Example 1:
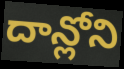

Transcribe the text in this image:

దాన్లోని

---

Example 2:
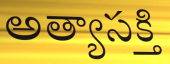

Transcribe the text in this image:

అత్యాసక్తి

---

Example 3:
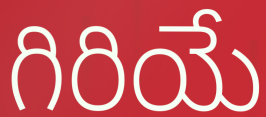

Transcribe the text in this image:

గిరియే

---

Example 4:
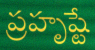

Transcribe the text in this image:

ప్రహృష్టే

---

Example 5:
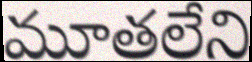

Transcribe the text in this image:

మూతలేని